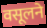
वसूलने